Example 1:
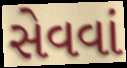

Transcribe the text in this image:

સેવવાં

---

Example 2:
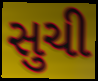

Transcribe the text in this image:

સુચી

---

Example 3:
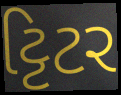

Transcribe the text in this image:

ટ્ટિટર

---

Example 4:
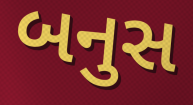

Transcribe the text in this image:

બનુસ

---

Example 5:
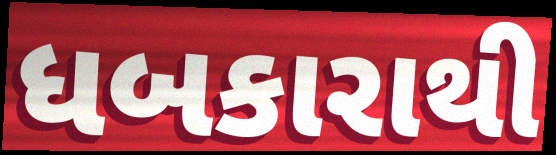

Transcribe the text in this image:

ધબકારાથી